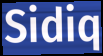
Sidiq